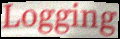
Logging